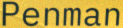
Penman